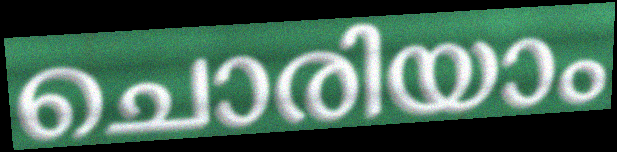
ചൊരിയാം